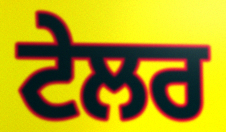
ਟੇਲਰ